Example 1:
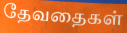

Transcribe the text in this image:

தேவதைகள்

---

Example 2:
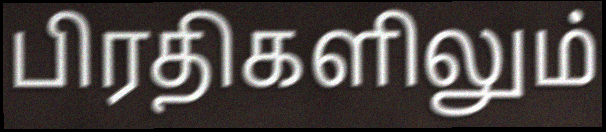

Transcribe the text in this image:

பிரதிகளிலும்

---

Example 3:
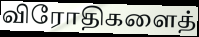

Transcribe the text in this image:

விரோதிகளைத்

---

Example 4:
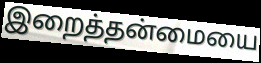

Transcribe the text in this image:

இறைத்தன்மையை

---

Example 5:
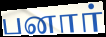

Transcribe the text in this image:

பனார்